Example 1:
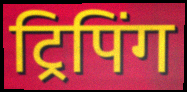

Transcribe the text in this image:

ट्रिपिंग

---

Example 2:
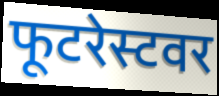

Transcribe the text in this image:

फूटरेस्टवर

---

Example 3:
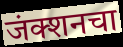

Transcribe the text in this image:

जंक्‍शनचा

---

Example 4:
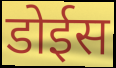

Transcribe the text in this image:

डोईस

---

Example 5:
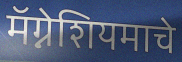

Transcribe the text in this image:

मॅग्नेशियमाचे